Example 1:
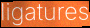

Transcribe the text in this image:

ligatures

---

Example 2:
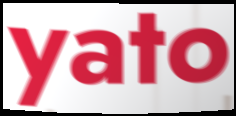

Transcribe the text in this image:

yato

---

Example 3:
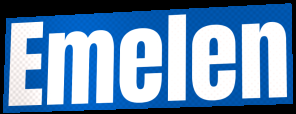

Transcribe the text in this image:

Emelen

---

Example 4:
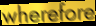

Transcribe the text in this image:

wherefore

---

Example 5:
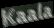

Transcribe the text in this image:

Kaala